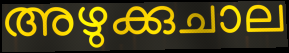
അഴുക്കുചാല